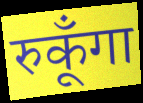
रुकूँगा